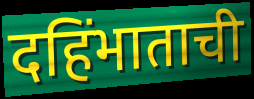
दहिंभाताची